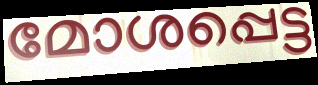
മോശപ്പെട്ട